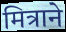
मित्राने